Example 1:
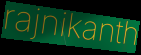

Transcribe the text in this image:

rajnikanth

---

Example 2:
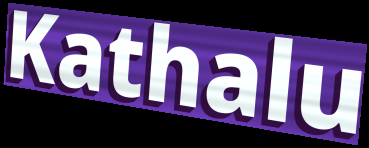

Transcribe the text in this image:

Kathalu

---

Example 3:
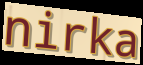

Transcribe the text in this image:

nirka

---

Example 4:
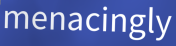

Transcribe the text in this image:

menacingly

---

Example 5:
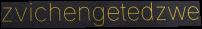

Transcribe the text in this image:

zvichengetedzwe